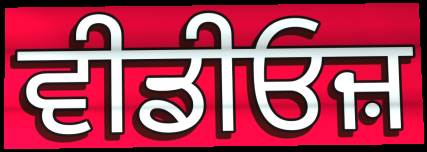
ਵੀਡੀਓਜ਼